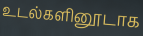
உடல்களினூடாக